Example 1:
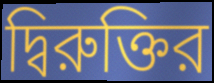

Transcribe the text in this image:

দ্বিরুক্তির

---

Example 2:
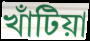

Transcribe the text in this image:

খাঁটিয়া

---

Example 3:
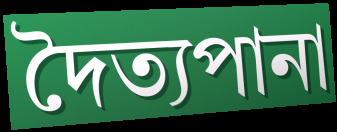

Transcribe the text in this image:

দৈত্যপানা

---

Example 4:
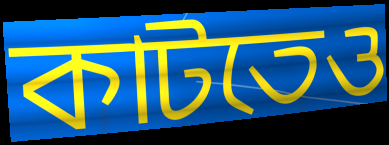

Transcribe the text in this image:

কাটতেও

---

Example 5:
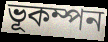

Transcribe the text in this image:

ভূকম্পন